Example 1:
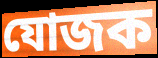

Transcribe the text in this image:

যোজক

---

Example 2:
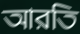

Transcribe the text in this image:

আরতি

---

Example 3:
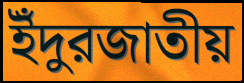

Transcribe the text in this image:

ইঁদুরজাতীয়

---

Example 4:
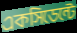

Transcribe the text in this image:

একসিডেন্টে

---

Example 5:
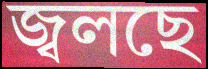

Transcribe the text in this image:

জ্বলছে